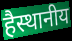
हैस्थानीय